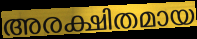
അരക്ഷിതമായ